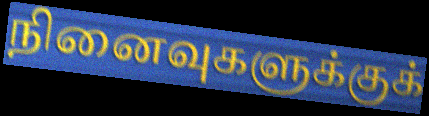
நினைவுகளுக்குக்